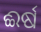
ଈର୍ଷ